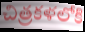
చిత్రకళలోకి